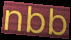
nbb